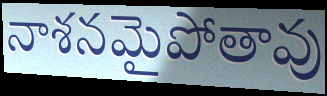
నాశనమైపోతావు